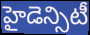
హైడెన్సిటీ